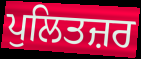
ਪੁਲਿਤਜ਼ਰ